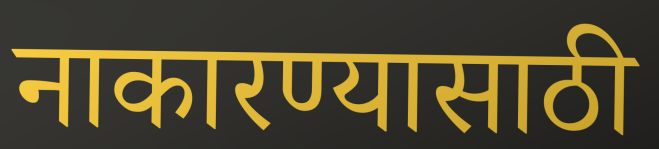
नाकारण्यासाठी